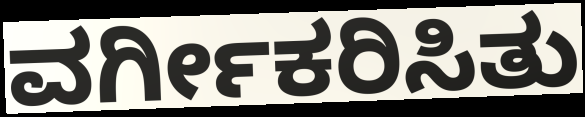
ವರ್ಗೀಕರಿಸಿತು